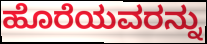
ಹೊರೆಯವರನ್ನು